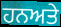
ਹਨਅਤੇ